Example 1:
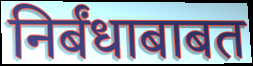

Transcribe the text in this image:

निर्बंधाबाबत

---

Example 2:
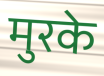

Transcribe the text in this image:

मुरके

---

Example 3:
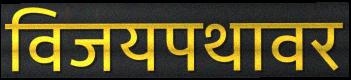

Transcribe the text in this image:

विजयपथावर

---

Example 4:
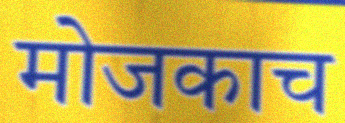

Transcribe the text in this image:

मोजकाच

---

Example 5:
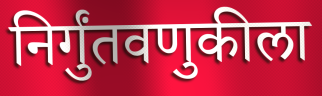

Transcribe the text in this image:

निर्गुंतवणुकीला